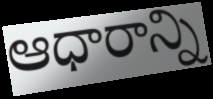
ఆధారాన్ని